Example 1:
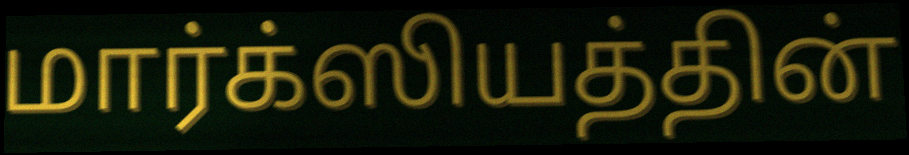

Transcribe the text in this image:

மார்க்ஸியத்தின்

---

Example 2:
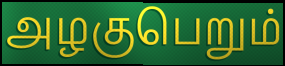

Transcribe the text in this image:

அழகுபெறும்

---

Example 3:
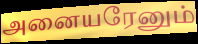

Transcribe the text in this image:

அனையரேனும்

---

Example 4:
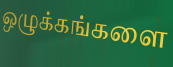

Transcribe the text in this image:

ஒழுக்கங்களை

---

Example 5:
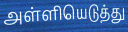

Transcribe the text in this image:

அள்ளியெடுத்து